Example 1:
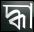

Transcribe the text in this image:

দ্ধা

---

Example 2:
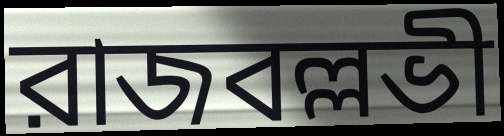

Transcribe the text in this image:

রাজবল্লভী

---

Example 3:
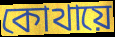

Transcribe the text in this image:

কোথায়ে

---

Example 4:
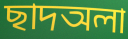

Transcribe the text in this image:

ছাদঅলা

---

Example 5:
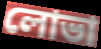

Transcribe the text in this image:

লোভা